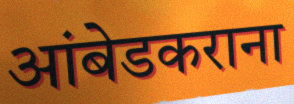
आंबेडकराना